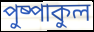
পুষ্পাকুল